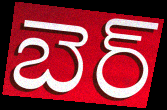
బెర్